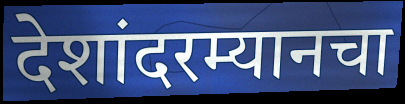
देशांदरम्यानचा